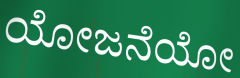
ಯೋಜನೆಯೋ